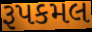
રૂપકમલ